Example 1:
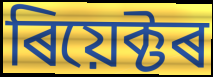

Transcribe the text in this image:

ৰিয়েক্টৰ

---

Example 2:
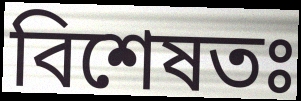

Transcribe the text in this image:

বিশেষতঃ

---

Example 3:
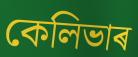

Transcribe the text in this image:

কেলিভাৰ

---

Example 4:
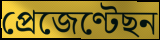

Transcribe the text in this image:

প্ৰেজেণ্টেছন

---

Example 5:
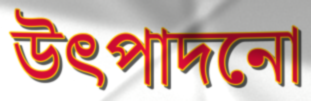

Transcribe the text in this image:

উৎপাদনো